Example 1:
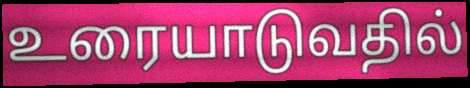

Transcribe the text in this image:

உரையாடுவதில்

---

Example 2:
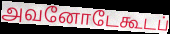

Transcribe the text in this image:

அவனோடேகூடப்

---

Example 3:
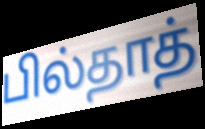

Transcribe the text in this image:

பில்தாத்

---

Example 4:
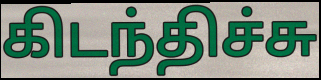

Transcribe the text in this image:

கிடந்திச்சு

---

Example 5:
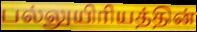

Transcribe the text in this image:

பல்லுயிரியத்தின்